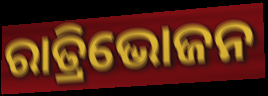
ରାତ୍ରିଭୋଜନ